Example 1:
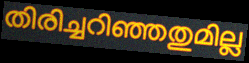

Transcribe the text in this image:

തിരിച്ചറിഞ്ഞതുമില്ല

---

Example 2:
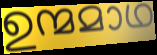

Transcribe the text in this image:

ഉന്മമാഥ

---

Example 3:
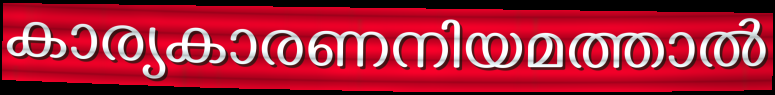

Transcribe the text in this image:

കാര്യകാരണനിയമത്താൽ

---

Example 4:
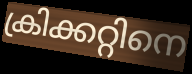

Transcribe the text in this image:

ക്രിക്കറ്റിനെ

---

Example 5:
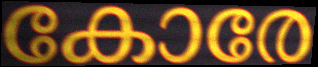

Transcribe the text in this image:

കോരേ